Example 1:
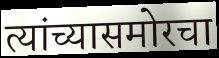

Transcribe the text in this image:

त्यांच्यासमोरचा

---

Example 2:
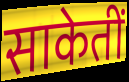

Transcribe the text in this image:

साकेतीं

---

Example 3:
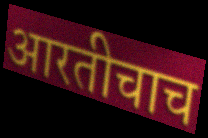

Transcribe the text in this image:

आरतीचाच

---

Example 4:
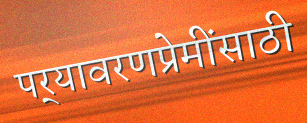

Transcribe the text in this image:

पर्यावरणप्रेमींसाठी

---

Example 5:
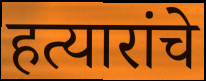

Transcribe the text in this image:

हत्यारांचे